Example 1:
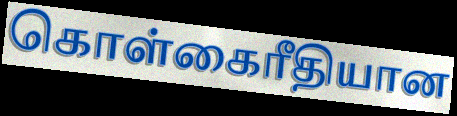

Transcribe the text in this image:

கொள்கைரீதியான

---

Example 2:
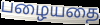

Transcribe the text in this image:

பழையதை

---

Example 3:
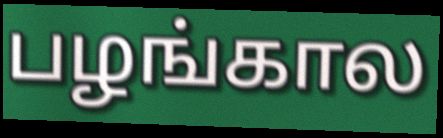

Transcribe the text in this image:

பழங்கால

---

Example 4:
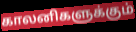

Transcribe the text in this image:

காலனிகளுக்கும்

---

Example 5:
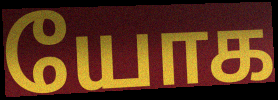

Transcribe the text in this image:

யோக